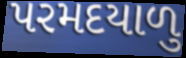
પરમદયાળુ